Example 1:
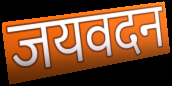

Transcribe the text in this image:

जयवदन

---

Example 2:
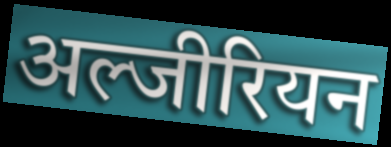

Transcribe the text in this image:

अल्जीरियन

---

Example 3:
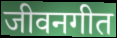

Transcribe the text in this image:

जीवनगीत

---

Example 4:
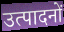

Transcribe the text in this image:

उत्पादनों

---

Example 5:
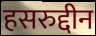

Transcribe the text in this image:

हसरुद्दीन